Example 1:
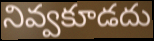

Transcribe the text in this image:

నివ్వకూడదు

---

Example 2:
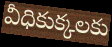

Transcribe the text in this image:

వీధికుక్కలకు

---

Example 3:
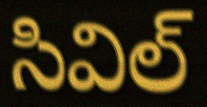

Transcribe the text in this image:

సివిల్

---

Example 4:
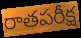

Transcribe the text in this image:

రాతపరీక్ష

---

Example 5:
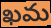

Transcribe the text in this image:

ఖమ